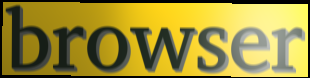
browser